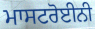
ਮਾਸਟਰੋਈਨੀ